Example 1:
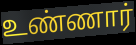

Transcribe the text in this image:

உண்ணார்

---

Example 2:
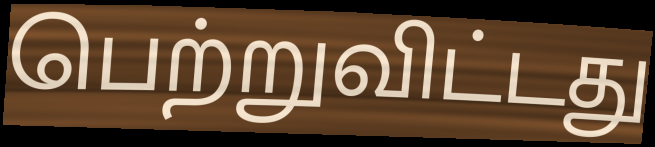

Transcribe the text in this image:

பெற்றுவிட்டது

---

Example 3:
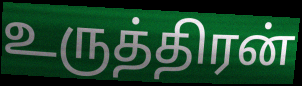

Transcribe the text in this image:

உருத்திரன்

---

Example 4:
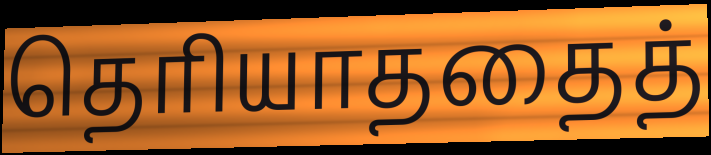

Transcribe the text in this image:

தெரியாததைத்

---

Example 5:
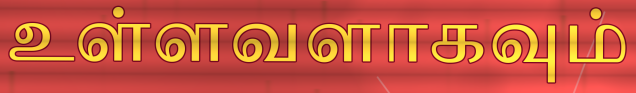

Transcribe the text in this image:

உள்ளவளாகவும்